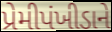
પ્રેમીપંખીડાને